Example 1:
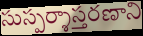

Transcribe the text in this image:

సుస్పర్శాస్తరణాని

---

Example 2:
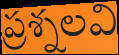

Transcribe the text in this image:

ప్రశ్నలవి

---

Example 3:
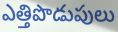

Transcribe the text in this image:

ఎత్తిపొడుపులు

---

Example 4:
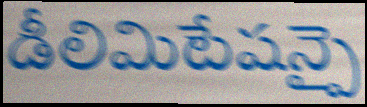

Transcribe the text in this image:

డీలిమిటేషన్పై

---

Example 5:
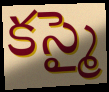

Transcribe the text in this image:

కస్మై